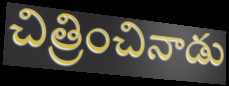
చిత్రించినాడు